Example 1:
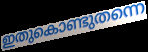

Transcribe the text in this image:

ഇതുകൊണ്ടുതന്നെ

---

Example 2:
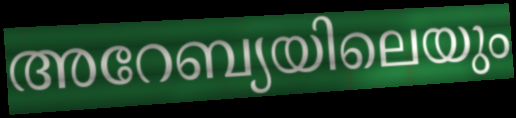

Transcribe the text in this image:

അറേബ്യയിലെയും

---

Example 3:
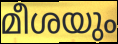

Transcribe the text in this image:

മീശയും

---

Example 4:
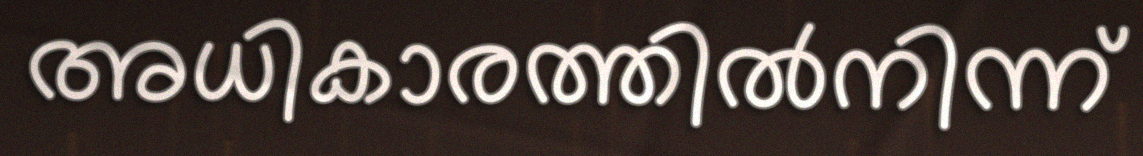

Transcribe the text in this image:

അധികാരത്തിൽനിന്ന്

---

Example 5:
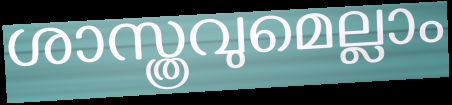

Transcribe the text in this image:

ശാസ്ത്രവുമെല്ലാം